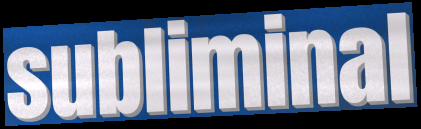
subliminal